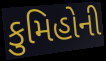
કુમિહોની